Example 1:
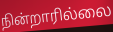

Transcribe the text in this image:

நின்றாரில்லை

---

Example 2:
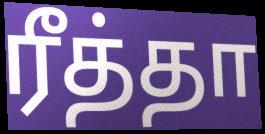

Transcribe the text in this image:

ரீத்தா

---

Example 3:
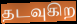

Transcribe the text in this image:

தடவுகிற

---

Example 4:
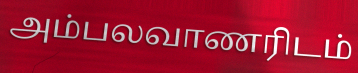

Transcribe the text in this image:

அம்பலவாணரிடம்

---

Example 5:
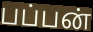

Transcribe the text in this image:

பப்பன்